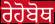
ਰੇਹੋਬੋਥ